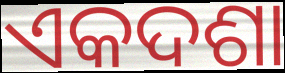
ଏକଦଶା